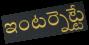
ఇంటర్నెట్టే